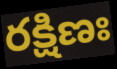
రక్షిణః